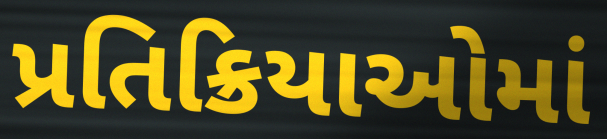
પ્રતિક્રિયાઓમાં